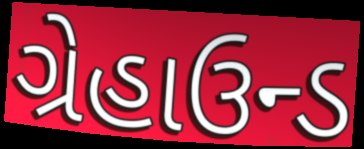
ગ્રેહાઉન્ડ